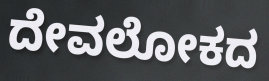
ದೇವಲೋಕದ